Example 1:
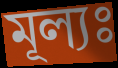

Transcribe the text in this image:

মূল্যঃ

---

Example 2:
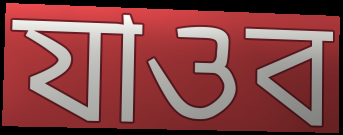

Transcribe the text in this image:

যাওব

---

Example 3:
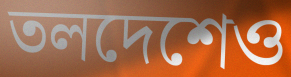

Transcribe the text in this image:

তলদেশেও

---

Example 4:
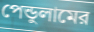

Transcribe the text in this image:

পেন্ডুলামের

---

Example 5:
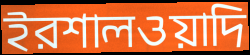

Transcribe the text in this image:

ইরশালওয়াদি